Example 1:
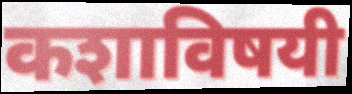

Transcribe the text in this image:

कशाविषयी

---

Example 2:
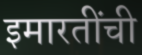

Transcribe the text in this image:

इमारतींची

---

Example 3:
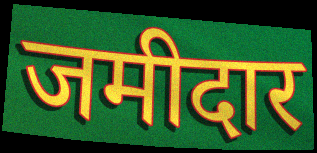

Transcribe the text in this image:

जमीदार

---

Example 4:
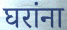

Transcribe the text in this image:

घरांना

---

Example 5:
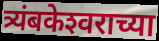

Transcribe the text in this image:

त्र्यंबकेश्‍वराच्या